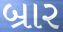
બ્રાર